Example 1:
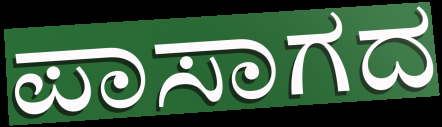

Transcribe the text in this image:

ಪಾಸಾಗದ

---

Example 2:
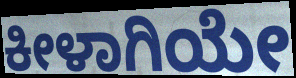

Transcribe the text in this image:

ಕೀಳಾಗಿಯೇ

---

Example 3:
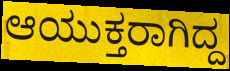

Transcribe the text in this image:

ಆಯುಕ್ತರಾಗಿದ್ದ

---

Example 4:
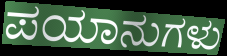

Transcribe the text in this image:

ಪಯಾನುಗಳು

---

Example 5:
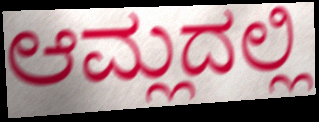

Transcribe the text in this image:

ಆಮ್ಲದಲ್ಲಿ